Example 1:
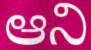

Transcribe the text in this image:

ఆని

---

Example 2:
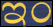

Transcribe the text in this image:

ఇం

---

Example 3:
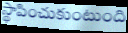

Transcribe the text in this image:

స్థాపించుకుంటుంది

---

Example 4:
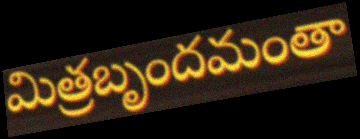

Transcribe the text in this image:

మిత్రబృందమంతా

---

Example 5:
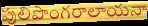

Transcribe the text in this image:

పులిపొంగరాలాయనా